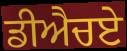
ਡੀਐਚਏ